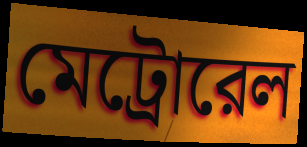
মেট্রোরেল